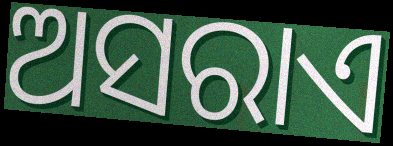
ଅସରାଏ